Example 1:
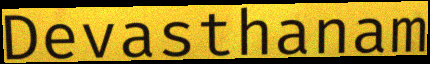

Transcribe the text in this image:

Devasthanam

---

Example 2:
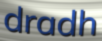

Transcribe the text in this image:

dradh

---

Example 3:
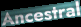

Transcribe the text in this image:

Ancestral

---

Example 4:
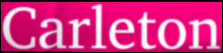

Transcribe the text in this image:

Carleton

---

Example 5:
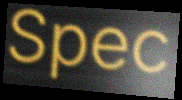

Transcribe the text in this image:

Spec